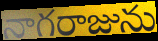
నాగరాజును